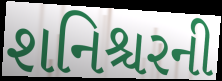
શનિશ્ચરની